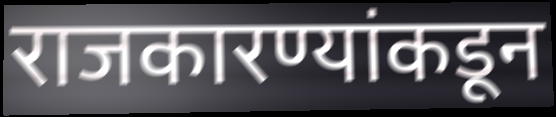
राजकारण्यांकडून